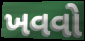
ખવવો